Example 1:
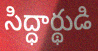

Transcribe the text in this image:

సిద్ధార్థుడి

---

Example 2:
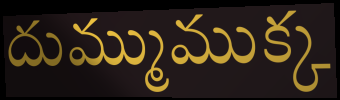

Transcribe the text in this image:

దుమ్ముముక్క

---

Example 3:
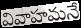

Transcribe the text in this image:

వివాహమనే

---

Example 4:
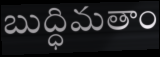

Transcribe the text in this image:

బుద్ధిమతాం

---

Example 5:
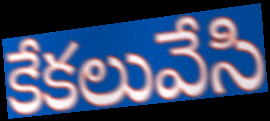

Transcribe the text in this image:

కేకలువేసి